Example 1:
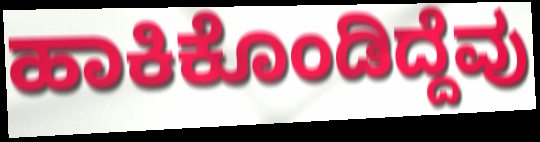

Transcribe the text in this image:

ಹಾಕಿಕೊಂಡಿದ್ದೆವು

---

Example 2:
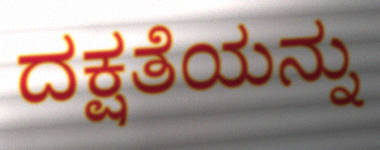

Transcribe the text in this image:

ದಕ್ಷತೆಯನ್ನು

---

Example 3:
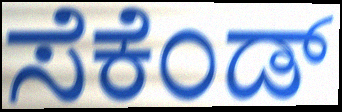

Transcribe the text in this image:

ಸೆಕೆಂಡ್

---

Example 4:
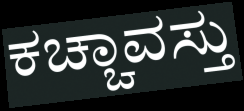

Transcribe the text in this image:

ಕಚ್ಚಾವಸ್ತು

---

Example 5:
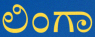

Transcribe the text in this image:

ಲಿಂಗಾ